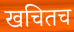
खचितच